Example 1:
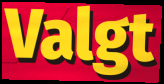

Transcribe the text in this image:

Valgt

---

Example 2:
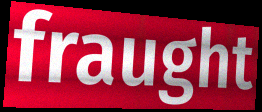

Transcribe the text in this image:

fraught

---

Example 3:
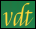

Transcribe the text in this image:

vdt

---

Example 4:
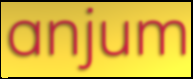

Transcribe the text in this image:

anjum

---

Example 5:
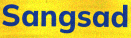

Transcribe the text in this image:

Sangsad